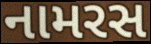
નામરસ